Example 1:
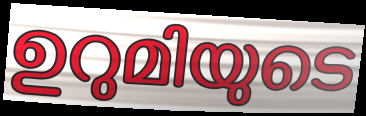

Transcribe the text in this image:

ഉറുമിയുടെ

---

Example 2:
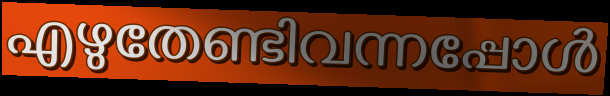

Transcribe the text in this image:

എഴുതേണ്ടിവന്നപ്പോൾ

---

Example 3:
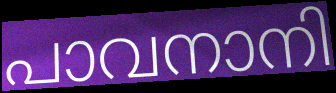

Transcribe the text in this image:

പാവനാനി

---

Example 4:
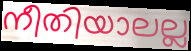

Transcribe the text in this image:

നീതിയാലല്ല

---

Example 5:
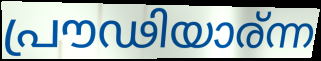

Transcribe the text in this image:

പ്രൗഢിയാര്ന്ന